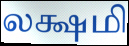
லக்ஷமி